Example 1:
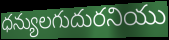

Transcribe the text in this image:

ధన్యులగుదురనియు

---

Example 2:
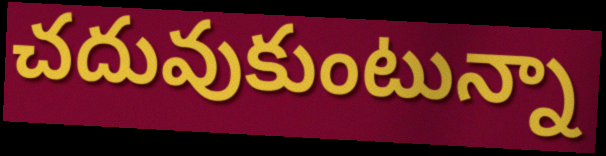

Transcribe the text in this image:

చదువుకుంటున్నా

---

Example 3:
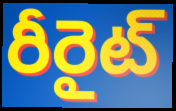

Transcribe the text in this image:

రీరైట్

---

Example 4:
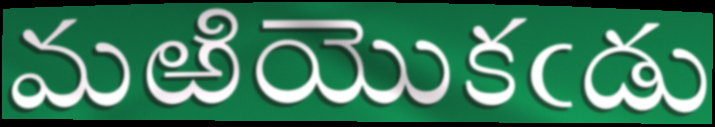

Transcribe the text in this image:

మఱియొకఁడు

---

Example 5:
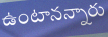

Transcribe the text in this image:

ఉంటానన్నారు